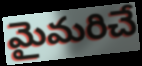
మైమరిచే